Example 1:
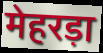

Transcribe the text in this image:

मेहरड़ा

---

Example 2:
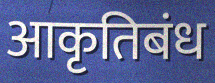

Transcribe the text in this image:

आकृतिबंध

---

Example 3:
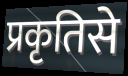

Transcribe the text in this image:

प्रकृतिसे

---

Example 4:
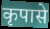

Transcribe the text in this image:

कृपासे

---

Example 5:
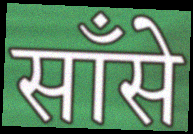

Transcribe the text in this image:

साँसे